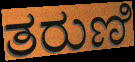
ತರುಣಿ